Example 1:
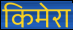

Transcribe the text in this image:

किमेरा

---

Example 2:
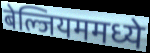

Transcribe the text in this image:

बेल्जियममध्ये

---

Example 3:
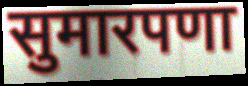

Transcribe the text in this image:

सुमारपणा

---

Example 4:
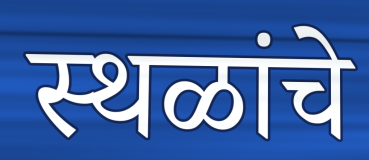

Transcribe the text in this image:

स्थळांचे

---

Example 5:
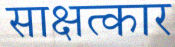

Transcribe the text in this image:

साक्षत्कार